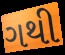
ગથી